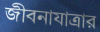
জীবনাযাত্রার